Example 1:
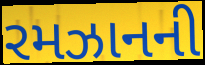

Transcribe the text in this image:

રમઝાનની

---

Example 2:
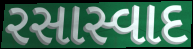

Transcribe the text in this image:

રસાસ્વાદ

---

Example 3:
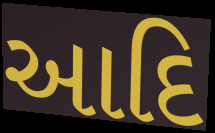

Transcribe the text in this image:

આદિ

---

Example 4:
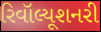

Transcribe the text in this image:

રિવૉલ્યૂશનરી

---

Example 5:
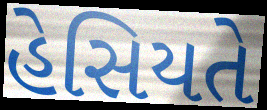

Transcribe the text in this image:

હેસિયતે